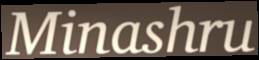
Minashru